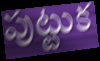
పుట్టుక